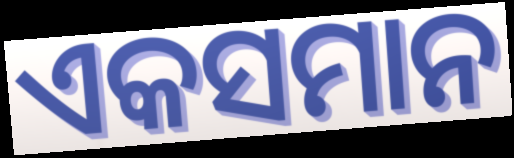
ଏକସମାନ